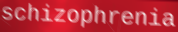
schizophrenia